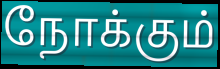
நோக்கும்